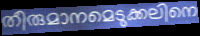
തീരുമാനമെടുക്കലിനെ